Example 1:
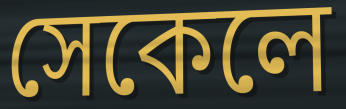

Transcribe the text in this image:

সেকেলে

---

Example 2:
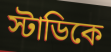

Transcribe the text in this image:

স্টাডিকে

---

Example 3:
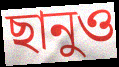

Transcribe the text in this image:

ছানুও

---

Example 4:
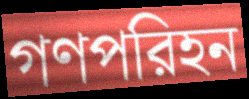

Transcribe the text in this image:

গণপরিহন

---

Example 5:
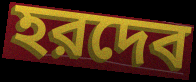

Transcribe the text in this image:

হরদেব